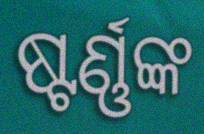
ଷ୍ଟର୍ଣ୍ଣଙ୍କ